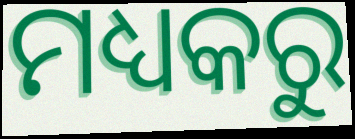
ମଧ୍ୟକରୁ